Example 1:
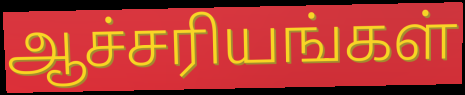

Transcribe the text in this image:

ஆச்சரியங்கள்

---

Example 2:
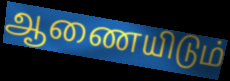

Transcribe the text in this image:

ஆணையிடும்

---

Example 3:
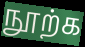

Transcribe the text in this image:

நூற்க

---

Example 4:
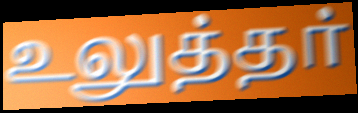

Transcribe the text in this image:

உலுத்தர்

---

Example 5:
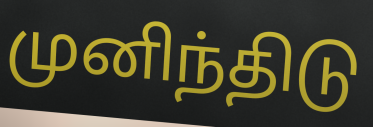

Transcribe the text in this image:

முனிந்திடு